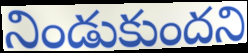
నిండుకుందని